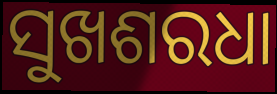
ସୁଖଶରଧା